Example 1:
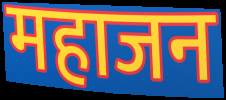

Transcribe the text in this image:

महाजन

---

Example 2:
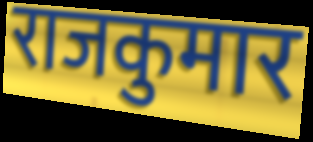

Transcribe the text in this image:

राजकुमार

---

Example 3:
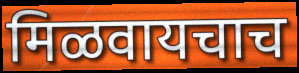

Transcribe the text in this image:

मिळवायचाच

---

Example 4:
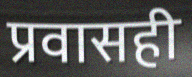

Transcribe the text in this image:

प्रवासही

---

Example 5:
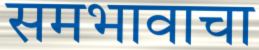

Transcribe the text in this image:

समभावाचा